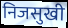
निजसुखी